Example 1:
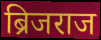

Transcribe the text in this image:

ब्रिजराज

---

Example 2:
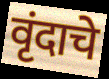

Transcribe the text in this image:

वृंदाचे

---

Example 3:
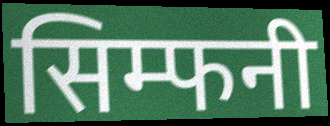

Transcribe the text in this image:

सिम्फनी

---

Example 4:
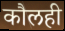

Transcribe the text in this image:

कौलही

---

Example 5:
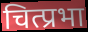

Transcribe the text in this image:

चित्प्रभा